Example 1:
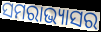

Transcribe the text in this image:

ସମରାଭ୍ୟାସର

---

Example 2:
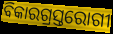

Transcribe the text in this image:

ବିକାରଗ୍ରସ୍ତରୋଗୀ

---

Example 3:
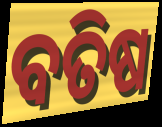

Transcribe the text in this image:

ବତିଷ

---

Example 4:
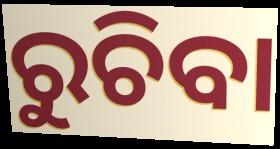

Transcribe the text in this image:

ରୁଚିବା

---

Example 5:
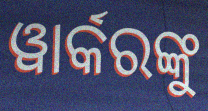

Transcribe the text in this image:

ୱାର୍କରଙ୍କୁ